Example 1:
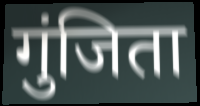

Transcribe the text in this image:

गुंजिता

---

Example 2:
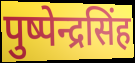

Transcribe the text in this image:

पुष्पेन्द्रसिंह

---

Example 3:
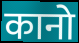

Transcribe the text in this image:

कानो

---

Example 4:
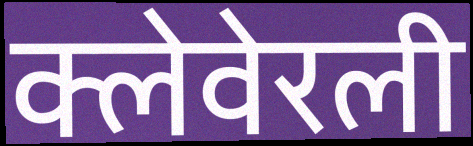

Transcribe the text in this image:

क्लेवेरली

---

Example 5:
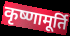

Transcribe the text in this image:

कृष्णामूर्ति